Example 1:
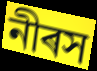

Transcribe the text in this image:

নীৰস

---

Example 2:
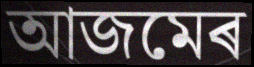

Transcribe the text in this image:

আজমেৰ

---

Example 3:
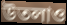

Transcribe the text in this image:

উতলাও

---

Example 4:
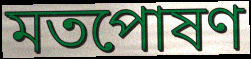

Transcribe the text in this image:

মতপোষণ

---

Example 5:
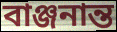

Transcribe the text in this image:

বাঞ্জনান্ত